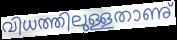
വിധത്തിലുള്ളതാണു്